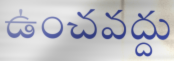
ఉంచవద్దు